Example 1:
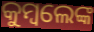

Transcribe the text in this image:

କୁମ୍ବଲେଙ୍କ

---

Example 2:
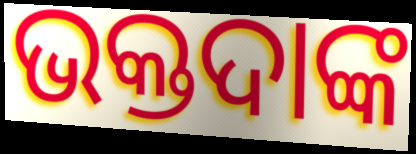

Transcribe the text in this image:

ଭକ୍ତଦାଙ୍କ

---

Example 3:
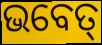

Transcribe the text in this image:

ଭବେତ୍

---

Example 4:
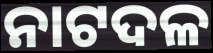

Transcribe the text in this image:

ନାଟଦଳ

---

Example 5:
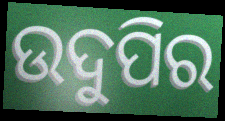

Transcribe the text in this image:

ଉଦୁପିର